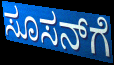
ಸೂಸನ್‌ಗೆ